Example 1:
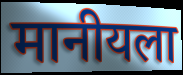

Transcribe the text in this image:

मानीयला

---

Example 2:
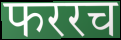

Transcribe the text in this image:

फररच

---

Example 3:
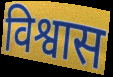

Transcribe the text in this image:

विश्वास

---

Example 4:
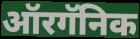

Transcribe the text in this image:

ऑरगॅनिक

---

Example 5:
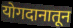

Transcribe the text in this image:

योगदानातून